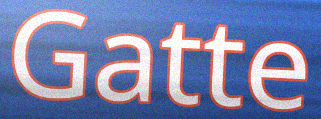
Gatte